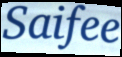
Saifee